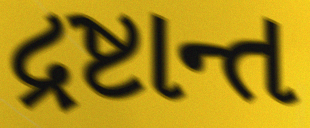
દ્રષ્ટાન્ત